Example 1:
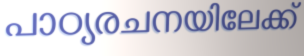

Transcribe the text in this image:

പാഠ്യരചനയിലേക്ക്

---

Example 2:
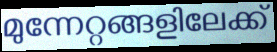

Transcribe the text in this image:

മുന്നേറ്റങ്ങളിലേക്ക്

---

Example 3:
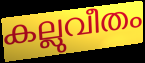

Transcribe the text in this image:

കല്ലുവീതം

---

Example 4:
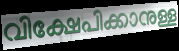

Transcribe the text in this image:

വിക്ഷേപിക്കാനുള്ള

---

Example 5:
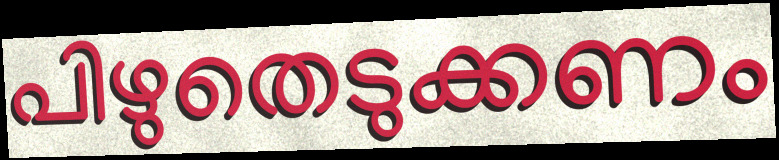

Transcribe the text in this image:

പിഴുതെടുക്കണം